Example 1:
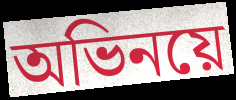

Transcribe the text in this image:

অভিনয়ে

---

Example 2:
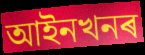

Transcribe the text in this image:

আইনখনৰ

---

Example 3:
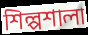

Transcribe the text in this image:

শিল্পশালা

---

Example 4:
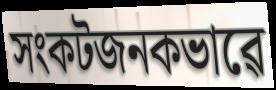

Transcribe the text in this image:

সংকটজনকভাৱে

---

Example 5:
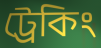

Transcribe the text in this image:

ট্ৰেকিং